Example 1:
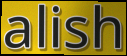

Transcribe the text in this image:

alish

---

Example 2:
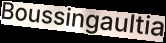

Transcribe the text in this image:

Boussingaultia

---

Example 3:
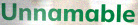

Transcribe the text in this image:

Unnamable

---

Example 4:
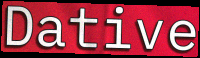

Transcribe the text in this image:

Dative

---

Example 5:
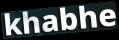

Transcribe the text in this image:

khabhe